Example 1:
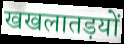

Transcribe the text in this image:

खखलातड़यों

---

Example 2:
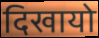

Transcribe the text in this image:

दिखायो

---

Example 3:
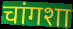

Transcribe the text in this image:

चांगशा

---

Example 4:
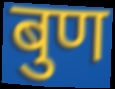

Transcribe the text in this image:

बुण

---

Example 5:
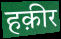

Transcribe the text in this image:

हक़ीर